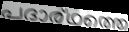
പദാര്ഥത്തെ